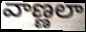
వాణ్ణలా